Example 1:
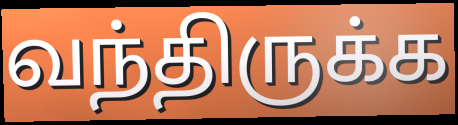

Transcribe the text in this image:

வந்திருக்க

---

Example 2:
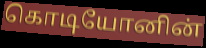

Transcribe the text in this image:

கொடியோனின்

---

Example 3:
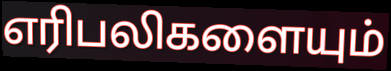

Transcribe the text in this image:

எரிபலிகளையும்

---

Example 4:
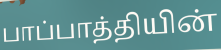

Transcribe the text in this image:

பாப்பாத்தியின்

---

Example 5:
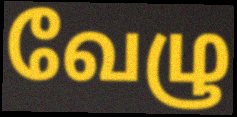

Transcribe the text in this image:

வேழு